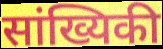
सांख्यिकी